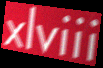
xlviii